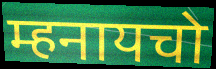
म्हनायचो